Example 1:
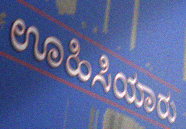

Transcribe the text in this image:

ಊಹಿಸಿಯಾರು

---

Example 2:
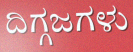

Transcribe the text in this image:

ದಿಗ್ಗಜಗಳು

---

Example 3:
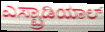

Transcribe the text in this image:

ಎಸ್ಟ್ರಾಡಿಯಾಲ್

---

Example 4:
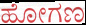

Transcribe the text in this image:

ಹೋಗಣ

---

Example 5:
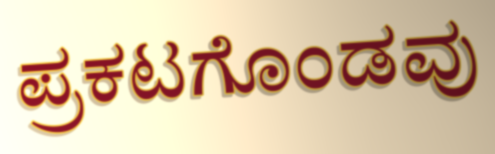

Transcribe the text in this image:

ಪ್ರಕಟಗೊಂಡವು